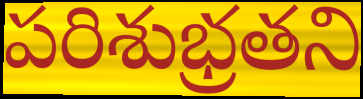
పరిశుభ్రతని